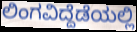
ಲಿಂಗವಿದ್ದೆಡೆಯಲ್ಲಿ